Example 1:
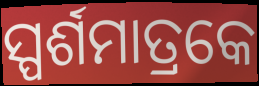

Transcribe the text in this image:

ସ୍ପର୍ଶମାତ୍ରକେ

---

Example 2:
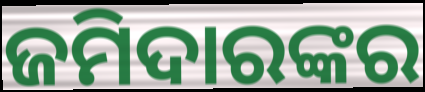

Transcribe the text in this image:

ଜମିଦାରଙ୍କର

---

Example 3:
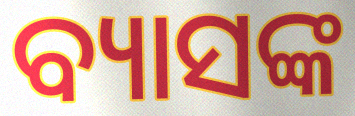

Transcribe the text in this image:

ବ୍ୟାସଙ୍କ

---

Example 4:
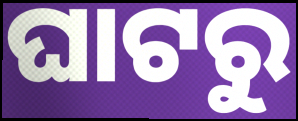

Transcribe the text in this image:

ଘାଟରୁ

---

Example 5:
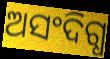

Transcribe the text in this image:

ଅସଂଦିଗ୍ଧ